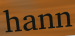
hann